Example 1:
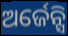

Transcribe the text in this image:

ଅର୍ଜେନ୍ସି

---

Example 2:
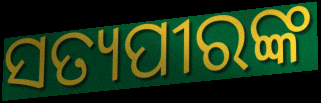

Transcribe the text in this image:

ସତ୍ୟପୀରଙ୍କ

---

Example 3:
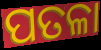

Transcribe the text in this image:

ପତଳା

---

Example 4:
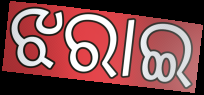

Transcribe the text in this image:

ଝରାଇ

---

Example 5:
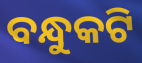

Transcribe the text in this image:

ବନ୍ଧୁକଟି